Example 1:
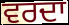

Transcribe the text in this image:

ਵਰਦਾ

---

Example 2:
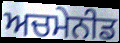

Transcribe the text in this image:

ਅਚਮੇਨੀਡ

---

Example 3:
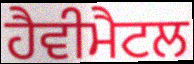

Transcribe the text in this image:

ਹੈਵੀਮੈਟਲ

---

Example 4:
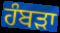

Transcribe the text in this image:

ਹੰਬੜਾ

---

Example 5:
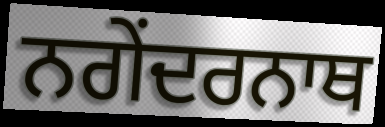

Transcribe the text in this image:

ਨਗੇਂਦਰਨਾਥ